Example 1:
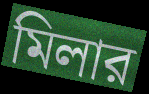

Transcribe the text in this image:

মিলার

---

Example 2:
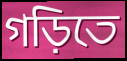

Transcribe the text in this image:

গড়িতে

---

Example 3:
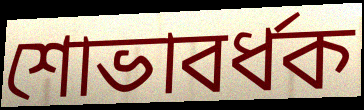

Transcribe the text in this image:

শোভাবর্ধক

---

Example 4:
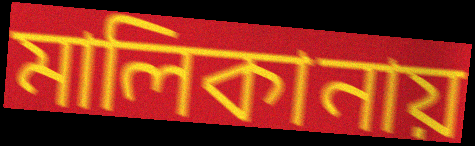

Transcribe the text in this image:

মালিকানায়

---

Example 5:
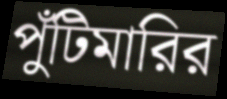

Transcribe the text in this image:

পুঁটিমারির